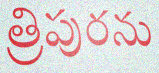
త్రిపురను